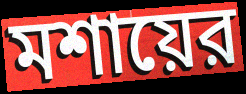
মশায়ের